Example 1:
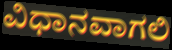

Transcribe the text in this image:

ವಿಧಾನವಾಗಲಿ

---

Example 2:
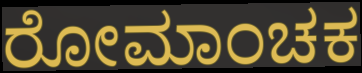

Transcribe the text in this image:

ರೋಮಾಂಚಕ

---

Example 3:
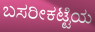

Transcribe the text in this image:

ಬಸರೀಕಟ್ಟೆಯ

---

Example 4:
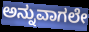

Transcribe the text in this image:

ಅನ್ನುವಾಗಲೇ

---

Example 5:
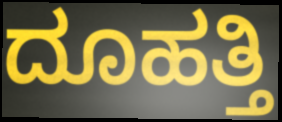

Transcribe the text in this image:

ದೂಹತ್ತಿ